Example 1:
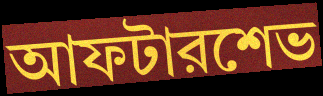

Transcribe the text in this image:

আফটারশেভ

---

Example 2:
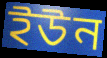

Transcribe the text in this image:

ইউন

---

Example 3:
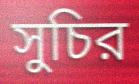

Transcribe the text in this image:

সুচির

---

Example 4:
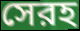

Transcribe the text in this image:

সেরহ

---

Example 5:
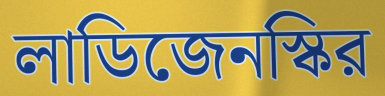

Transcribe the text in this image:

লাডিজেনস্কির